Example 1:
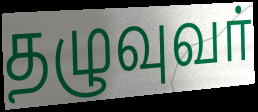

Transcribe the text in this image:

தழுவுவர்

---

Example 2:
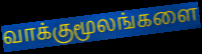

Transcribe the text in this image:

வாக்குமூலங்களை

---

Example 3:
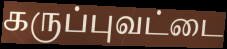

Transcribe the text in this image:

கருப்புவட்டை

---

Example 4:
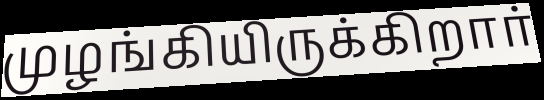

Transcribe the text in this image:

முழங்கியிருக்கிறார்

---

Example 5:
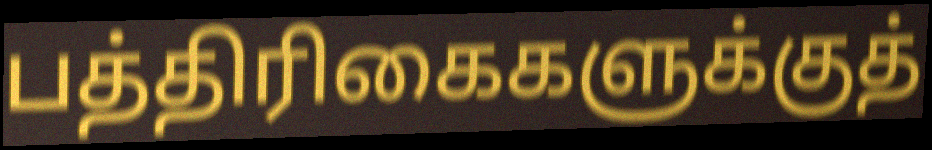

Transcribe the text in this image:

பத்திரிகைகளுக்குத்